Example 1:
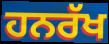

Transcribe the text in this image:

ਹਨਰੱਖ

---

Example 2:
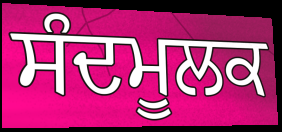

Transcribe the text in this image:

ਸੰਦਮੂਲਕ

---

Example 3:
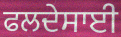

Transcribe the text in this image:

ਫਲਦੇਸਾਈ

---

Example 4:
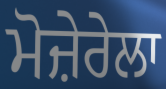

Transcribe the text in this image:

ਮੋਜ਼ੇਰੇਲਾ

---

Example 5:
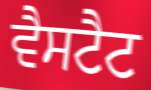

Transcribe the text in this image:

ਵੈਸਟੈਟ